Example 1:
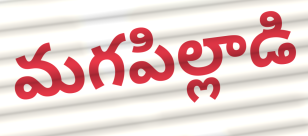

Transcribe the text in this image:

మగపిల్లాడి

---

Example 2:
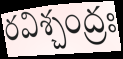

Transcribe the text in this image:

రవిశ్చంద్రః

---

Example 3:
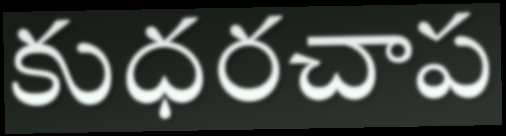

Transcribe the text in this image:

కుధరచాప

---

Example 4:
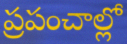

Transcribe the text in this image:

ప్రపంచాల్లో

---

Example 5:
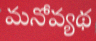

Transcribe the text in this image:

మనోవ్యథ